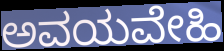
ಅವಯವೇಹಿ